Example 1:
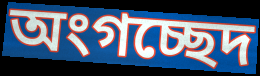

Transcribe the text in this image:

অংগচ্ছেদ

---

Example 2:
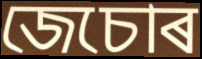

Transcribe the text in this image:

জেচোৰ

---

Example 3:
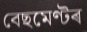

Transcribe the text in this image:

বেছমেণ্টৰ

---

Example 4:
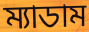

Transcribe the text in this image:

ম্যাডাম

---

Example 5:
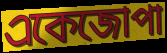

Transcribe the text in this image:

একেজোপা